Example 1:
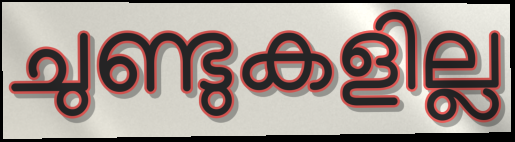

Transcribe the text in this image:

ചുണ്ടുകളില്ല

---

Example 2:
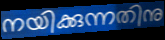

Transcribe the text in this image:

നയിക്കുന്നതിനു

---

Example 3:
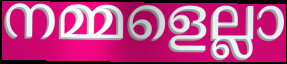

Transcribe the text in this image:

നമ്മളെല്ലാ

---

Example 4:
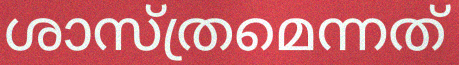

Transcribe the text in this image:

ശാസ്ത്രമെന്നത്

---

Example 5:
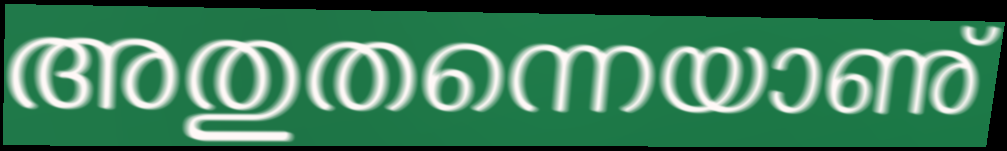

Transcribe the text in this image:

അതുതന്നെയാണു്